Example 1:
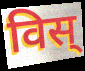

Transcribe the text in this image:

विस्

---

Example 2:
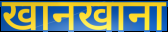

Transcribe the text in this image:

खानखाना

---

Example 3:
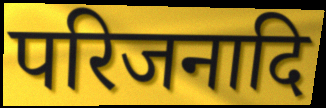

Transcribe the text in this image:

परिजनादि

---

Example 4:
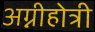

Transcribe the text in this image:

अग्नीहोत्री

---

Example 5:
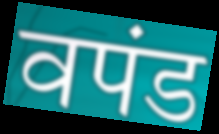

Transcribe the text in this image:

वपंड